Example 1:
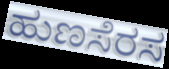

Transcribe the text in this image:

ಹುಣಸೆರಸ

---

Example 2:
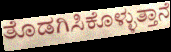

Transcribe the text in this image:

ತೊಡಗಿಸಿಕೊಳ್ಳುತ್ತಾನೆ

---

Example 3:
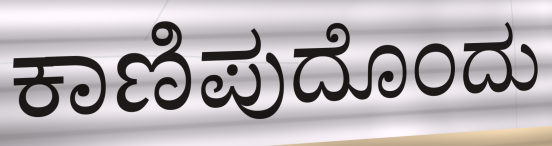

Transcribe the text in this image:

ಕಾಣಿಪುದೊಂದು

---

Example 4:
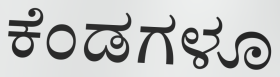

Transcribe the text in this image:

ಕೆಂಡಗಳೂ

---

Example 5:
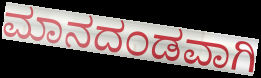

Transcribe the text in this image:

ಮಾನದಂಡವಾಗಿ